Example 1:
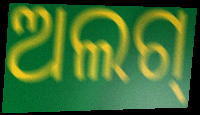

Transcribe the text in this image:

ଅଲଗ୍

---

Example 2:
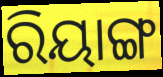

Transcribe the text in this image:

ରିୟାଙ୍ଗ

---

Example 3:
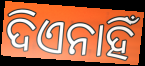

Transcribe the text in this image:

ଦିଏନାହିଁ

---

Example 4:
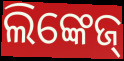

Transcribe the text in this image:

ଲିଙ୍କେଜ୍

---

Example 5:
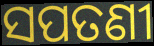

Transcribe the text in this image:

ସପତଣୀ